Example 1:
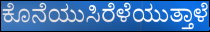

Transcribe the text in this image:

ಕೊನೆಯುಸಿರೆಳೆಯುತ್ತಾಳೆ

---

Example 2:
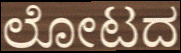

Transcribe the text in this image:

ಲೋಟದ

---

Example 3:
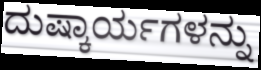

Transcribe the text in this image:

ದುಷ್ಕಾರ್ಯಗಳನ್ನು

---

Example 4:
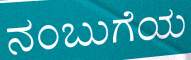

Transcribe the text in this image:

ನಂಬುಗೆಯ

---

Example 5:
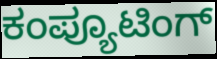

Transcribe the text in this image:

ಕಂಪ್ಯೂಟಿಂಗ್